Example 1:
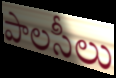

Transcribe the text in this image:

పాలసీలు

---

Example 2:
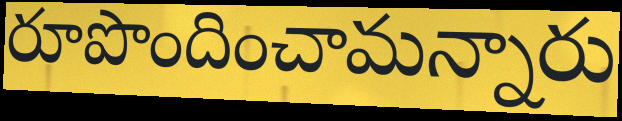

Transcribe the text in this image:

రూపొందించామన్నారు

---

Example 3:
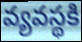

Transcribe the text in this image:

వ్యవస్థకి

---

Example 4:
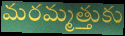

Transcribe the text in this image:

మరమ్మత్తుకు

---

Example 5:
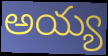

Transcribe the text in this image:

అయ్య